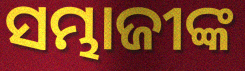
ସମ୍ଭାଜୀଙ୍କ